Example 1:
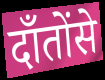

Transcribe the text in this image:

दाँतोंसे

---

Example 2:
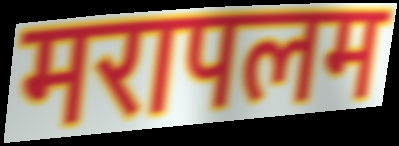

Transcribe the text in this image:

मरापलम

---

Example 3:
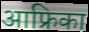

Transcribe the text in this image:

आफ्रिका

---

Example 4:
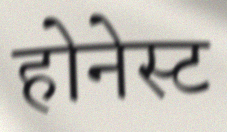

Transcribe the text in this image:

होनेस्ट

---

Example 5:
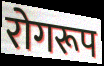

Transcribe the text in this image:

रोगरूप